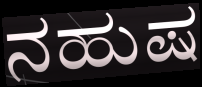
ನಹುಷ